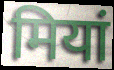
मियां